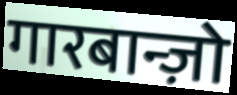
गारबान्ज़ो